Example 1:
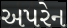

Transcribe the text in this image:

અપરેન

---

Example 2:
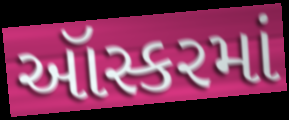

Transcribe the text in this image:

ઑસ્કરમાં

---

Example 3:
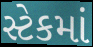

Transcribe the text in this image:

સ્ટેકમાં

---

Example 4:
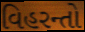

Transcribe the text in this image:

વિહરન્તો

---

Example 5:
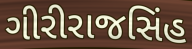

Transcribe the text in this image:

ગીરીરાજસિંહ